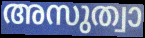
അസുത്വാ